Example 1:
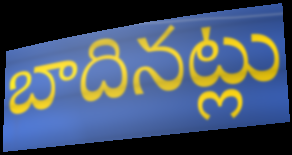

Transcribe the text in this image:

బాదినట్లు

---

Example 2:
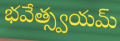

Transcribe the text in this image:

భవేత్స్వయమ్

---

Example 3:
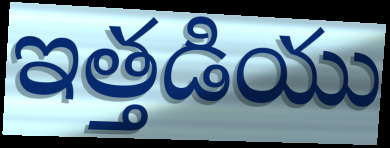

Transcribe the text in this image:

ఇత్తడియు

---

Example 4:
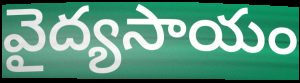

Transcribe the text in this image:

వైద్యసాయం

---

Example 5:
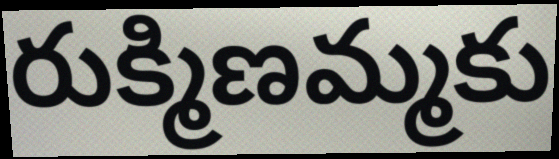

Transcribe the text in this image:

రుక్మిణమ్మకు